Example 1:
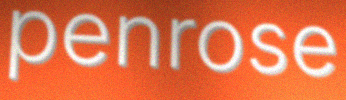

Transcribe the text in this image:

penrose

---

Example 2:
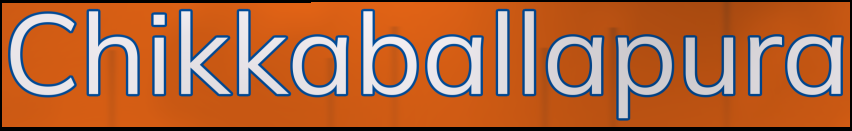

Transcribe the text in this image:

Chikkaballapura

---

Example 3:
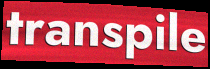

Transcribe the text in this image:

transpile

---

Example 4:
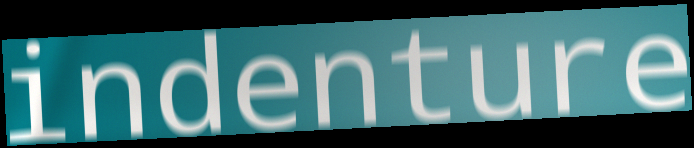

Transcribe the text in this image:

indenture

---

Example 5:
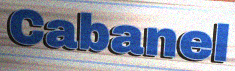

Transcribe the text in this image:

Cabanel